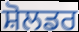
ਸ਼ੋਲਡਰ